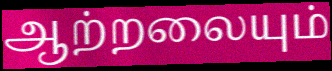
ஆற்றலையும்